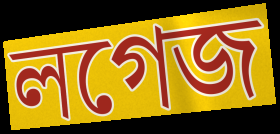
লগেজ